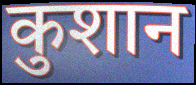
कुशान